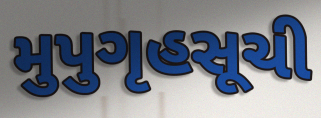
મુપુગૃહસૂચી